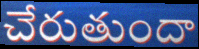
చేరుతుందా